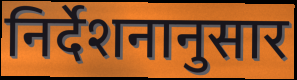
निर्देशनानुसार